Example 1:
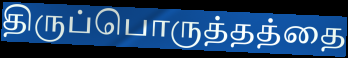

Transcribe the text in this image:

திருப்பொருத்தத்தை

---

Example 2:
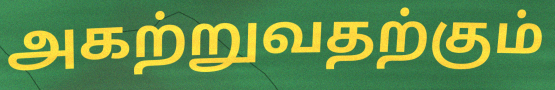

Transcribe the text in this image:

அகற்றுவதற்கும்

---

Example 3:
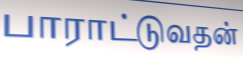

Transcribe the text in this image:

பாராட்டுவதன்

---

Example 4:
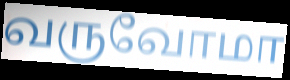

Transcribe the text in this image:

வருவோமா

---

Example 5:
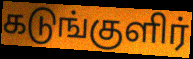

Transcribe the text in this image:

கடுங்குளிர்